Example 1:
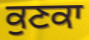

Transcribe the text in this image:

ਕੁਣਕਾ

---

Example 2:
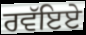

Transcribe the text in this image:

ਰਵੱਇਏ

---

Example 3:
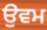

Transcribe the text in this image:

ਉਵਮ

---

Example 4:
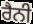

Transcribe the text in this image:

ਰੈਨੀ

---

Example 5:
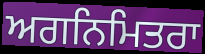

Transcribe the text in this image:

ਅਗਨਿਮਿਤਰਾ